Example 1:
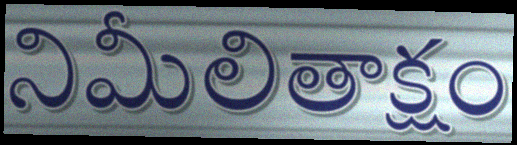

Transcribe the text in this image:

నిమీలితాక్షం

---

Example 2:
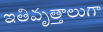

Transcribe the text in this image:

ఇతివృత్తాలుగా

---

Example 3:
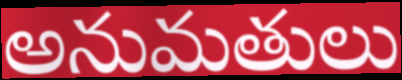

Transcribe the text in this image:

అనుమతులు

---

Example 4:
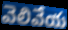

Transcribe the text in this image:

వెలివేయ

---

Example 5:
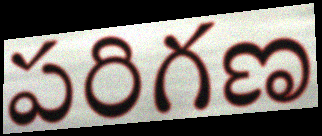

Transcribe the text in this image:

పరిగణ